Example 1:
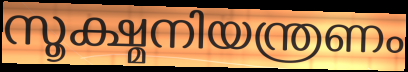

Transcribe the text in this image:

സൂക്ഷ്മനിയന്ത്രണം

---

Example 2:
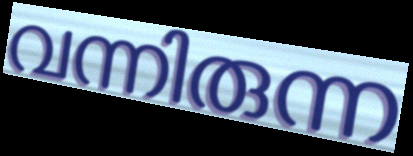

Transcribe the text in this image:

വന്നിരുന്ന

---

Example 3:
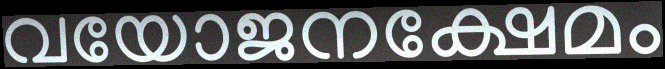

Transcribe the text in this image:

വയോജനക്ഷേമം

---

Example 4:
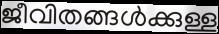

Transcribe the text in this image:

ജീവിതങ്ങൾക്കുള്ള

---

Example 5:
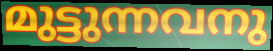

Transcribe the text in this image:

മുട്ടുന്നവനു